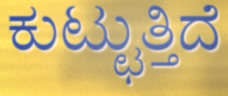
ಕುಟ್ಟುತ್ತಿದೆ